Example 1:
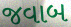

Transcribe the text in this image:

જવાબ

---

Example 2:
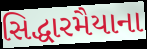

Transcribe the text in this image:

સિદ્ધારમૈયાના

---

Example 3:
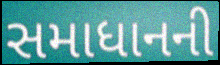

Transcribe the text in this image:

સમાધાનની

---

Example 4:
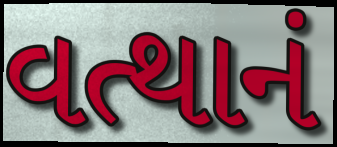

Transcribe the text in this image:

વત્થાનં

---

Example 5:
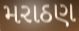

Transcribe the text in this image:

મરાઠણ